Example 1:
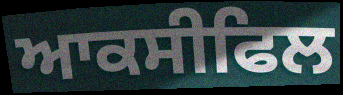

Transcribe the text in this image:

ਆਕਸੀਫਿਲ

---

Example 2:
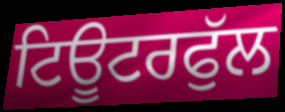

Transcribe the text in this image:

ਟਿਊਟਰਫੁੱਲ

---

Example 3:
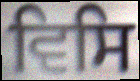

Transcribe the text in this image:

ਵਿਸਿ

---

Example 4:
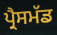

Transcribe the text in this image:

ਪ੍ਰੈਸਮੱਡ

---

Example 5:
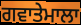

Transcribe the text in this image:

ਗਵਾਤੇਮਾਲਾ